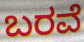
ಬರವೆ